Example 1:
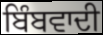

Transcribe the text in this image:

ਬਿੰਬਵਾਦੀ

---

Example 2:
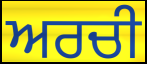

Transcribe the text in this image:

ਅਰਚੀ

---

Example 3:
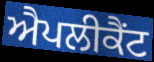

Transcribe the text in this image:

ਐਪਲੀਕੈਂਟ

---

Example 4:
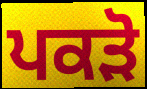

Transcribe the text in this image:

ਪਕੜੋ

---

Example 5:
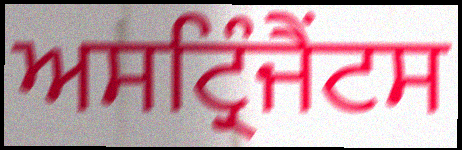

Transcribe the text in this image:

ਅਸਟ੍ਰਿੰਜੈਂਟਸ